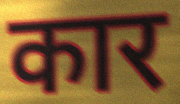
कार